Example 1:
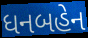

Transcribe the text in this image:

ધનબહેન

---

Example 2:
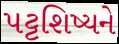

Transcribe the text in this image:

પટ્ટશિષ્યને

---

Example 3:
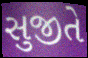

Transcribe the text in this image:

સુજીતે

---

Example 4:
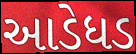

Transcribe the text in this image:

આડેધડ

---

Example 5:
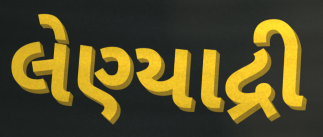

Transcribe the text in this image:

લેણ્યાદ્રી